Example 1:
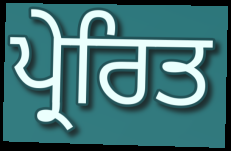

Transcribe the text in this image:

ਪ੍ਰੇਰਿਤ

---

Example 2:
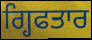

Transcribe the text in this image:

ਗ੍ਹਿਫਤਾਰ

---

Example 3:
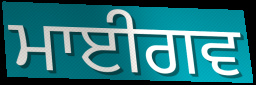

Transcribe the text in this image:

ਮਾਈਗਵ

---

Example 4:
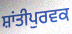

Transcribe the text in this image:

ਸ਼ਾਂਤੀਪੁਰਵਕ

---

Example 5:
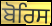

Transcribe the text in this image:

ਬੋਰਿਸ